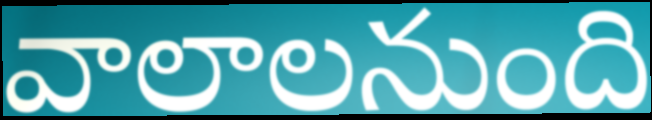
వాలాలనుంది